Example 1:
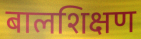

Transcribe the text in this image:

बालशिक्षण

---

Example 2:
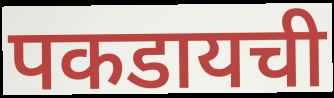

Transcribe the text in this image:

पकडायची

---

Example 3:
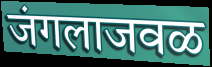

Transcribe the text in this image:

जंगलाजवळ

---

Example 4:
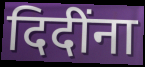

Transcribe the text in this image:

दिदींना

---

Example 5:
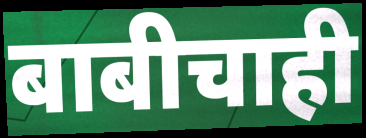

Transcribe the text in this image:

बाबीचाही